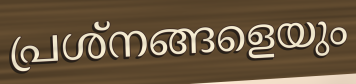
പ്രശ്നങ്ങളെയും